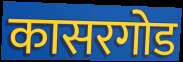
कासरगोड